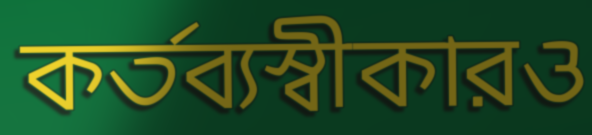
কর্তব্যস্বীকারও